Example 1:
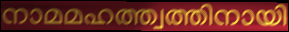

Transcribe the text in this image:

നാമമഹത്ത്വത്തിനായി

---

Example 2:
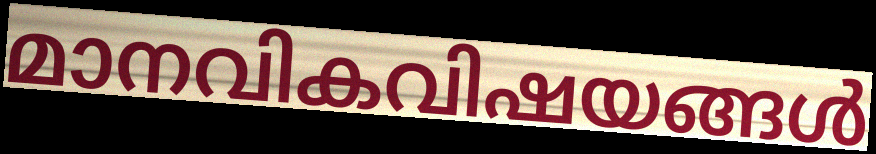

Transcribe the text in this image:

മാനവികവിഷയങ്ങൾ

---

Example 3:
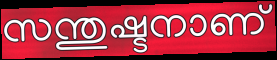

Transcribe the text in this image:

സന്തുഷ്ടനാണ്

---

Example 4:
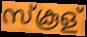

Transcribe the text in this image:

സ്കൂള്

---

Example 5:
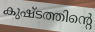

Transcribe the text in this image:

കുഷ്ടത്തിന്റെ